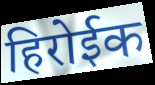
हिरोईक